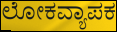
ಲೋಕವ್ಯಾಪಕ